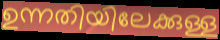
ഉന്നതിയിലേക്കുള്ള